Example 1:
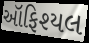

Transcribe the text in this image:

ઑફિશ્યલ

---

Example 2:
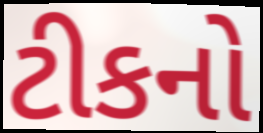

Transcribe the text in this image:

ટીકનો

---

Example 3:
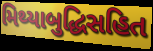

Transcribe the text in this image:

મિથ્યાબુદ્ધિસહિત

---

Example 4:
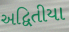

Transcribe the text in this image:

અદ્વિતીયા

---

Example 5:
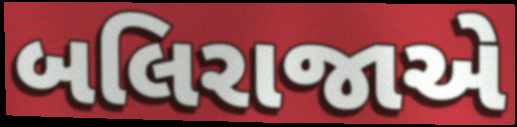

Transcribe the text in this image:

બલિરાજાએ